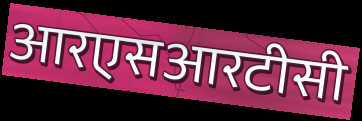
आरएसआरटीसी